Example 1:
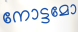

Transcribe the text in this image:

നോട്ടമോ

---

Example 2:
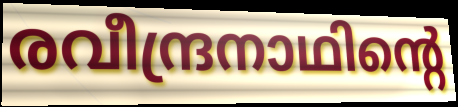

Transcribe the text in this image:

രവീന്ദ്രനാഥിന്റെ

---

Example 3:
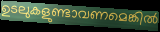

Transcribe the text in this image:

ഉടലുകളുണ്ടാവണമെങ്കിൽ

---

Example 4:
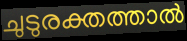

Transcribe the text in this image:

ചുടുരക്തത്താൽ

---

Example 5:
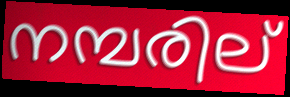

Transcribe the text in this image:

നമ്പരില്